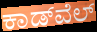
ಕಾಡ್‌ವೆಲ್